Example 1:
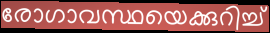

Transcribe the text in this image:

രോഗാവസ്ഥയെക്കുറിച്ച്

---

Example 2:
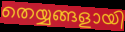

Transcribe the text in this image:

തെയ്യങ്ങളായി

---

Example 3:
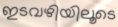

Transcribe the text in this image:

ഇടവഴിയിലൂടെ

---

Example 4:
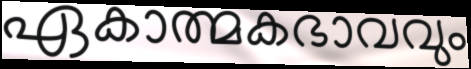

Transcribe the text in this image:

ഏകാത്മകഭാവവും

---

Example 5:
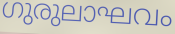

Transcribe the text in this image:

ഗുരുലാഘവം